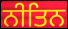
ਨੀਤਿਨ